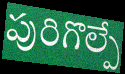
పురిగొల్పే